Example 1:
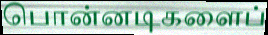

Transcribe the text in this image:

பொன்னடிகளைப்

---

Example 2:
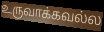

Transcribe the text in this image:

உருவாக்கவல்ல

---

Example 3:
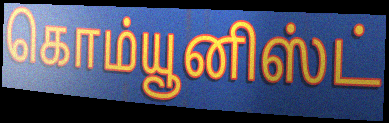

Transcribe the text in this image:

கொம்யூனிஸ்ட்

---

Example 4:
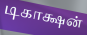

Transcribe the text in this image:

டிகாக்ஷன்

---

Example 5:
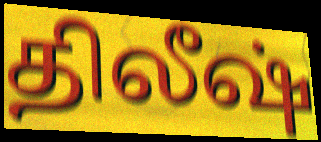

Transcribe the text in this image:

திலீஷ்